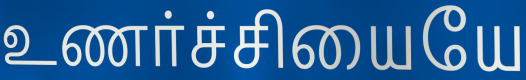
உணர்ச்சியையே